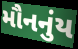
મૌનનુંય